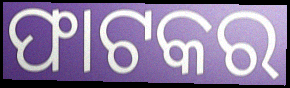
ଫାଟକର